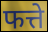
फत्ते